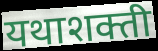
यथाशक्‍ती